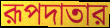
রূপদাতার